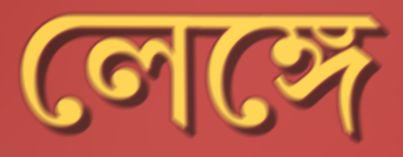
লেঙ্গে